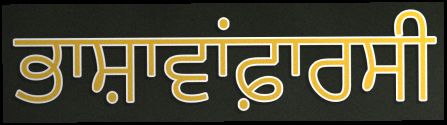
ਭਾਸ਼ਾਵਾਂਫ਼ਾਰਸੀ